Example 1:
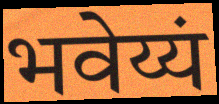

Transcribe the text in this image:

भवेय्यं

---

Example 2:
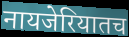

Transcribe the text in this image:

नायजेरियातच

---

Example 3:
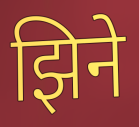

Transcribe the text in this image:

झिने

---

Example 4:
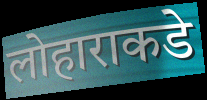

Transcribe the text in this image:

लोहाराकडे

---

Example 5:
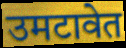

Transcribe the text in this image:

उमटावेत